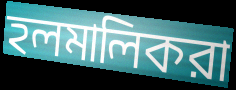
হলমালিকরা